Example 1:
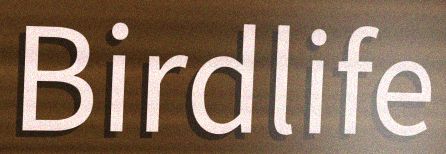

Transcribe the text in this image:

Birdlife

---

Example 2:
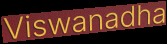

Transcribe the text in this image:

Viswanadha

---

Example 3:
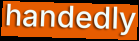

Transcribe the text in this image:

handedly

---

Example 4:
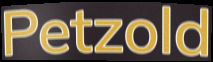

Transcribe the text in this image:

Petzold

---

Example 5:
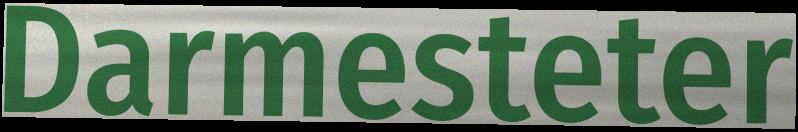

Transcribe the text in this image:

Darmesteter